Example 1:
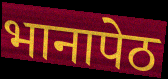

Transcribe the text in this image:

भानापेठ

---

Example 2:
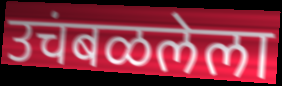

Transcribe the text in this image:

उचंबळलेला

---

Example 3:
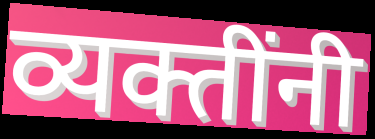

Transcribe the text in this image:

व्यक्‍तींनी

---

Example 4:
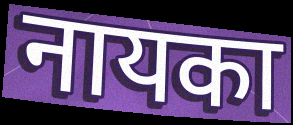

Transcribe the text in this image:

नायका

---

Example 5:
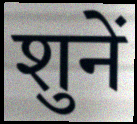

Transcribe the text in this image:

शुनें